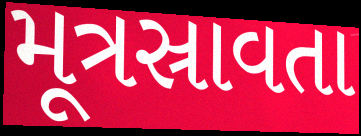
મૂત્રસ્રાવતા